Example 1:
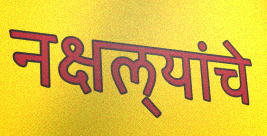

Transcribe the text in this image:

नक्षल्यांचे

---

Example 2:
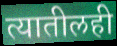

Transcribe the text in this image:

त्यातीलही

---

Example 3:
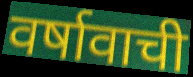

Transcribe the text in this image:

वर्षावाची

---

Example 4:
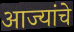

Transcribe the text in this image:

आज्यांचे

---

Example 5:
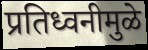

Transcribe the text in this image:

प्रतिध्वनीमुळे